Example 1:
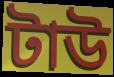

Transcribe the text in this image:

টাউ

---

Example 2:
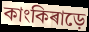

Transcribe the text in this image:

কাংকিৰাড়ে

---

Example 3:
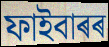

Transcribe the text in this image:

ফাইবাৰৰ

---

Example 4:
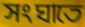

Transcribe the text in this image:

সংঘাতে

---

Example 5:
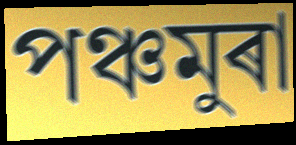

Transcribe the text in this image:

পঞ্চমুৰা